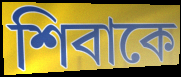
শিবাকে